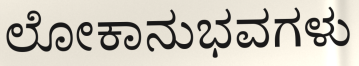
ಲೋಕಾನುಭವಗಳು